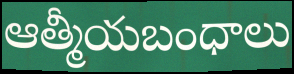
ఆత్మీయబంధాలు